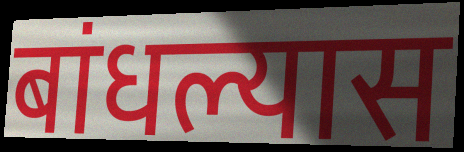
बांधल्यास